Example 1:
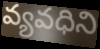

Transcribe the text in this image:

వ్యవధిని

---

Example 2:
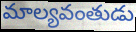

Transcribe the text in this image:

మాల్యవంతుడు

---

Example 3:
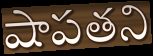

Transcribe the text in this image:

షాపతని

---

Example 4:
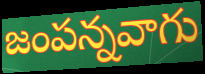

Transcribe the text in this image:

జంపన్నవాగు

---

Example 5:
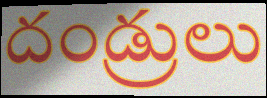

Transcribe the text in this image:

దండ్రులు